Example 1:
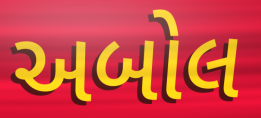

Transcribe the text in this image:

અબોલ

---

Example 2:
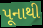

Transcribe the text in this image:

પૂનાથી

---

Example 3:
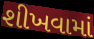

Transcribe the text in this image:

શીખવામાં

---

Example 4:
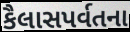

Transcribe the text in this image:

કૈલાસપર્વતના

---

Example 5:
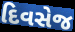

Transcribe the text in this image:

દિવસેજ